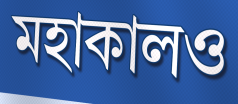
মহাকালও